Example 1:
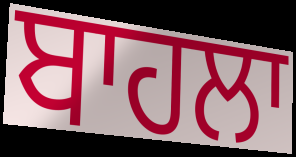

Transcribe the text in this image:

ਬਾਹਲਾ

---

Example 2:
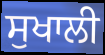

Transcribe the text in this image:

ਸੁਖਾਲੀ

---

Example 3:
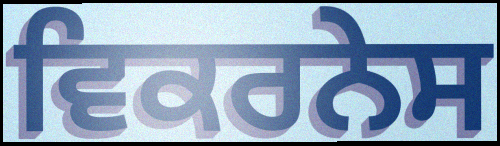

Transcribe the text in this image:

ਵਿਕਰਨੇਸ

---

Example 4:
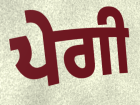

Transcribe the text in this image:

ਪੇਗੀ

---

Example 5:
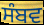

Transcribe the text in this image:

ਸੰਬਵ